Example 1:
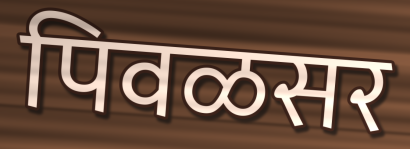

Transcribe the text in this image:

पिवळसर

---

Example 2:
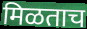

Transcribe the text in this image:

मिळताच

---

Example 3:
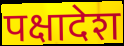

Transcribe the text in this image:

पक्षादेश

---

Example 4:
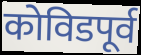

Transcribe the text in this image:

कोविडपूर्व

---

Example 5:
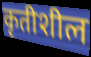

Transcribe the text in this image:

कृतीशील